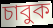
চাবুক